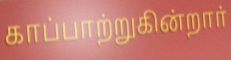
காப்பாற்றுகின்றார்